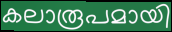
കലാരൂപമായി